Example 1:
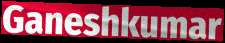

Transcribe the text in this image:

Ganeshkumar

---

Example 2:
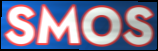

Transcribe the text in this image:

SMOS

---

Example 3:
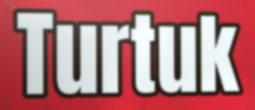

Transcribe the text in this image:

Turtuk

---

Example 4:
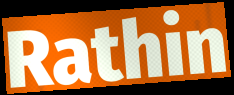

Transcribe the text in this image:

Rathin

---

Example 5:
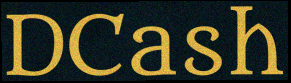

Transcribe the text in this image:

DCash